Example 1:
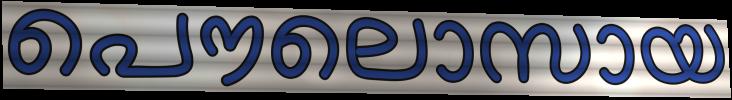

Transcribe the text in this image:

പൌലൊസായ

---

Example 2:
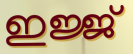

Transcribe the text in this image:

ഇജ്ജ്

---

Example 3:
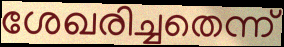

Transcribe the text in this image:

ശേഖരിച്ചതെന്ന്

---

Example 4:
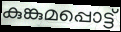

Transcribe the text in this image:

കുങ്കുമപ്പൊട്ട്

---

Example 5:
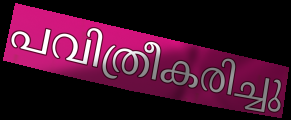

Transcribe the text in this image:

പവിത്രീകരിച്ചു